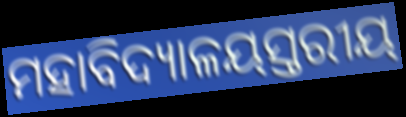
ମହାବିଦ୍ୟାଳୟସ୍ତରୀୟ